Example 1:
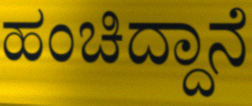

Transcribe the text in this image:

ಹಂಚಿದ್ದಾನೆ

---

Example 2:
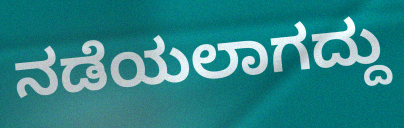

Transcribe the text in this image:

ನಡೆಯಲಾಗದ್ದು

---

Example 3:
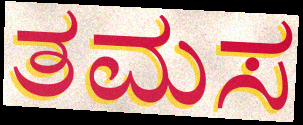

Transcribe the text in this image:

ತಮಸ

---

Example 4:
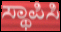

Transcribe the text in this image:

ಸ್ಥಾಪಿಸಿ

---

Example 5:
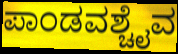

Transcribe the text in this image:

ಪಾಂಡವಶ್ಚೈವ